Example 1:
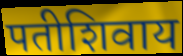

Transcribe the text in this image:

पतीशिवाय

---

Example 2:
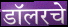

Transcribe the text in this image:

डॉलरचे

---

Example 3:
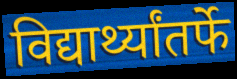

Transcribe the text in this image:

विद्यार्थ्यांतर्फे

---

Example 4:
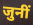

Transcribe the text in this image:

जुनीं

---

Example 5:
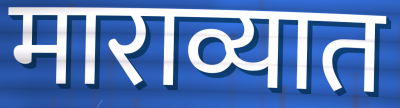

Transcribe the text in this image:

माराव्यात